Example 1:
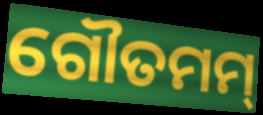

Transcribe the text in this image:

ଗୌତମମ୍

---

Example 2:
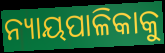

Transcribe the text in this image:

ନ୍ୟାୟପାଳିକାକୁ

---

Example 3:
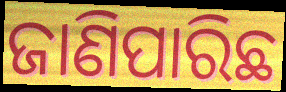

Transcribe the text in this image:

ଜାଣିପାରିଛ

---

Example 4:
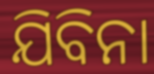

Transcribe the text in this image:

ଯିବିନା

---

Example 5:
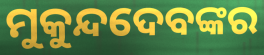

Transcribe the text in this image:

ମୁକୁନ୍ଦଦେବଙ୍କର